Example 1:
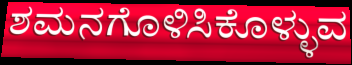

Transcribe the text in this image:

ಶಮನಗೊಳಿಸಿಕೊಳ್ಳುವ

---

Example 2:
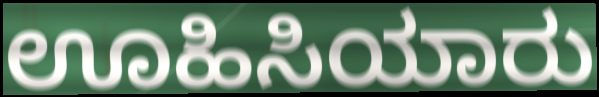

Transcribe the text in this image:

ಊಹಿಸಿಯಾರು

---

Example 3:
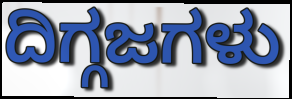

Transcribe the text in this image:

ದಿಗ್ಗಜಗಳು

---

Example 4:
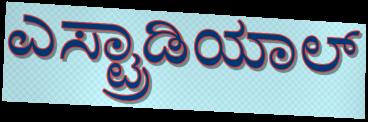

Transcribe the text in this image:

ಎಸ್ಟ್ರಾಡಿಯಾಲ್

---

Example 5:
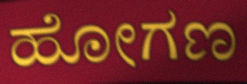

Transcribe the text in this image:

ಹೋಗಣ